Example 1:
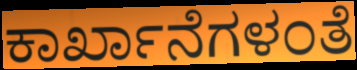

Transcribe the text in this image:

ಕಾರ್ಖಾನೆಗಳಂತೆ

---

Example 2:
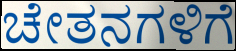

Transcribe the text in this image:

ಚೇತನಗಳಿಗೆ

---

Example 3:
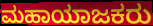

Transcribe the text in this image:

ಮಹಾಯಾಜಕರು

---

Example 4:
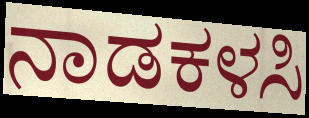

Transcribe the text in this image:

ನಾಡಕಳಸಿ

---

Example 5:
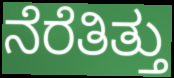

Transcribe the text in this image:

ನೆರೆತಿತ್ತು